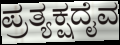
ಪ್ರತ್ಯಕ್ಷದೈವ